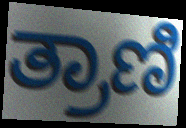
ತ್ರಾಣಿ